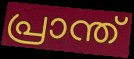
പ്രാന്ത്